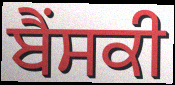
ਬੈਂਸਕੀ